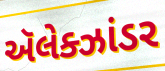
ઍલેક્ઝાંડર